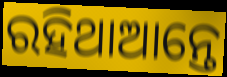
ରହିଥାଆନ୍ତେ